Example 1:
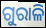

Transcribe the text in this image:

ଗୁରାଳି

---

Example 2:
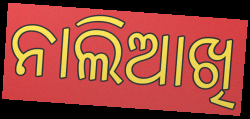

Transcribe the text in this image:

ନାଲିଆଖି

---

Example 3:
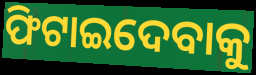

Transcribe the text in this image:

ଫିଟାଇଦେବାକୁ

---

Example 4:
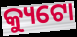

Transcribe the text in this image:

କ୍ୟୁଟୋ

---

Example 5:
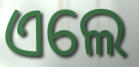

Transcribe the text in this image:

ଏଲେ